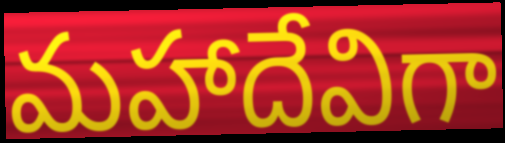
మహాదేవిగా